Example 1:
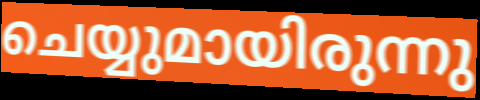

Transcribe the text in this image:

ചെയ്യുമായിരുന്നു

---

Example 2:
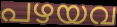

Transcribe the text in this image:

പഴയവ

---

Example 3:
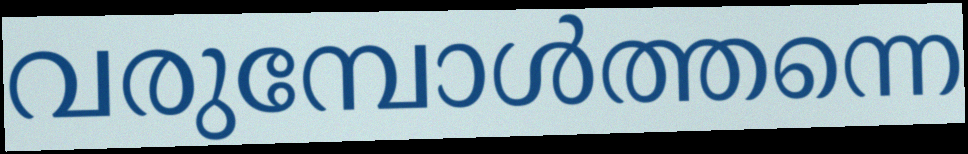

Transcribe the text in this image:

വരുമ്പോൾത്തന്നെ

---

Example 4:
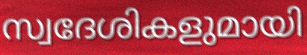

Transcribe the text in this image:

സ്വദേശികളുമായി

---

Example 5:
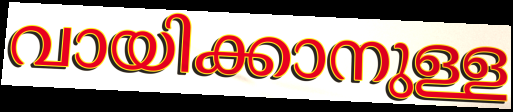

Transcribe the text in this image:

വായിക്കാനുള്ള